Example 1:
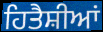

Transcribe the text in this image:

ਹਿਤੈਸ਼ੀਆਂ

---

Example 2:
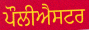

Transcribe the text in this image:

ਪੌਲੀਐਸਟਰ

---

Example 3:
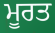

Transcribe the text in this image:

ਮੂਰਤ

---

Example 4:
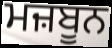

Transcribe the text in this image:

ਮਜ਼ਬੂਨ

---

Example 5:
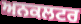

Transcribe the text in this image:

ਅਨਕਲਟਰ